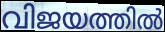
വിജയത്തിൽ